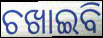
ଚଖାଇବି